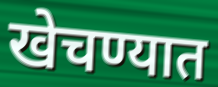
खेचण्यात